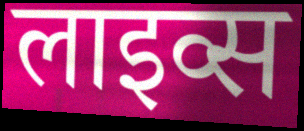
लाइव्स